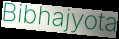
Bibhajyota